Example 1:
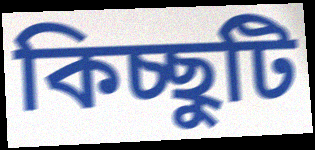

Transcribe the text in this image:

কিচ্ছুটি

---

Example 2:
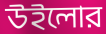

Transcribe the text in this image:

উইলোর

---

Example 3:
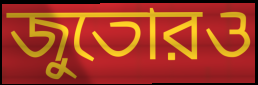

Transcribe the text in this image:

জুতোরও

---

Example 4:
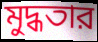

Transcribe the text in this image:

মুদ্ধতার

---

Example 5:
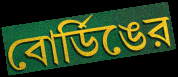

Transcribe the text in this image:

বোর্ডিঙের